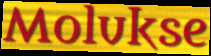
Molukse